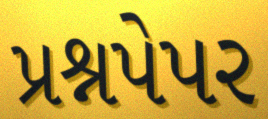
પ્રશ્નપેપર